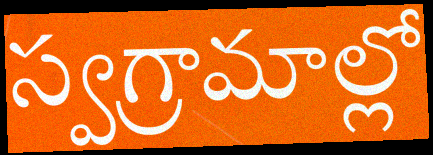
స్వగ్రామాల్లో